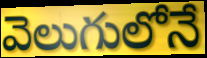
వెలుగులోనే